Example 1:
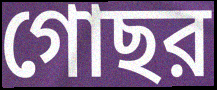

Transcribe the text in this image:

গোছর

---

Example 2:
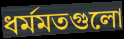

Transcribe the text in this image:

ধর্মমতগুলো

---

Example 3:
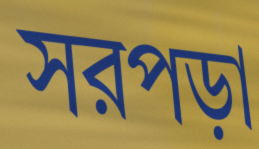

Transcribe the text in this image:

সরপড়া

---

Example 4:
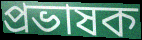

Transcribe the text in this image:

প্রভাষক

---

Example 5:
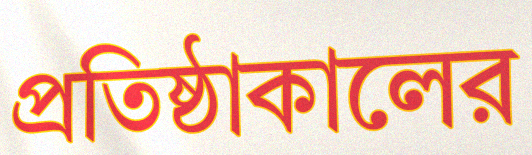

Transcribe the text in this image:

প্রতিষ্ঠাকালের